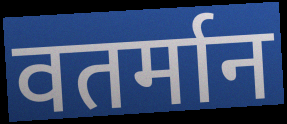
वतर्मान